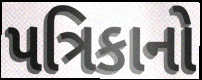
પત્રિકાનો